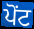
ਪੋਂਟ